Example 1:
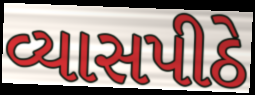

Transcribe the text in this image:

વ્યાસપીઠે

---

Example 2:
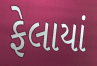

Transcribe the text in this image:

ફેલાયાં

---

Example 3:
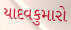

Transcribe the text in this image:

યાદવકુમારો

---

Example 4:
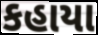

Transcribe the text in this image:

કહાયા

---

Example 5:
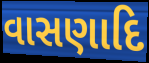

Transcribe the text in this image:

વાસણાદિ